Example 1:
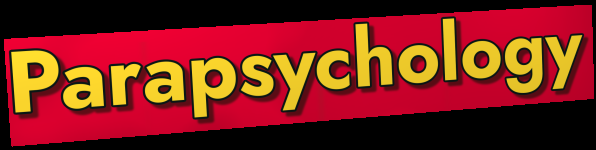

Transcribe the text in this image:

Parapsychology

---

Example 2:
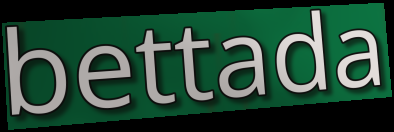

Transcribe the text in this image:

bettada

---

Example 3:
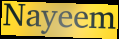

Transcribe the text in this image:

Nayeem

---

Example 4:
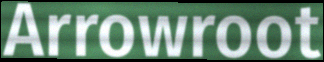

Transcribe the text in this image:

Arrowroot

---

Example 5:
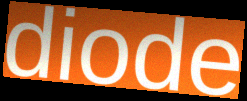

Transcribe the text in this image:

diode